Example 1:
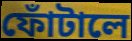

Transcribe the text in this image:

ফোঁটালে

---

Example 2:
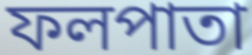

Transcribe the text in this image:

ফলপাতা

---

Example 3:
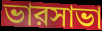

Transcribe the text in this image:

ভারসাভা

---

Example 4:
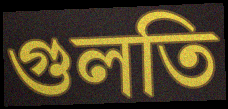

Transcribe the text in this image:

গুলতি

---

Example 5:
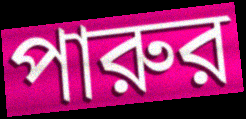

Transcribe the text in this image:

পারুর